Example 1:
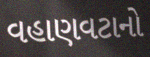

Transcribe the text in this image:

વહાણવટાનો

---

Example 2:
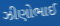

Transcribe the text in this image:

ઝીણોભાઈ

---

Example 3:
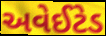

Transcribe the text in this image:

અવેઈટેડ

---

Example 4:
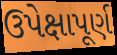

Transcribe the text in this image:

ઉપેક્ષાપૂર્ણ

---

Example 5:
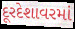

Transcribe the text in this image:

દૂરદેશાવરમાં